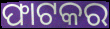
ଫାଟକର